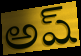
అష్